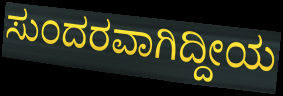
ಸುಂದರವಾಗಿದ್ದೀಯ